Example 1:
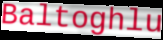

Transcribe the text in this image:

Baltoghlu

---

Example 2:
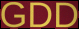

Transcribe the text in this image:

GDD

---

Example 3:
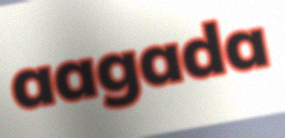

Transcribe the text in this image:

aagada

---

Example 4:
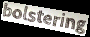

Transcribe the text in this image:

bolstering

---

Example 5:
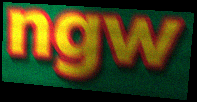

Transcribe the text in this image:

ngw